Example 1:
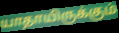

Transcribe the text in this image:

யாதாயிருக்கும்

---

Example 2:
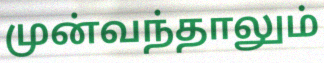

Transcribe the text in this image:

முன்வந்தாலும்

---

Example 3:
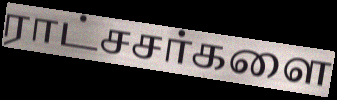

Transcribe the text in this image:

ராட்சசர்களை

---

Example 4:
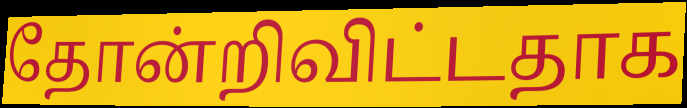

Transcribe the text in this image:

தோன்றிவிட்டதாக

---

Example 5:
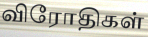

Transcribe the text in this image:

விரோதிகள்